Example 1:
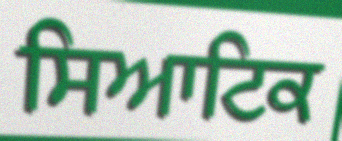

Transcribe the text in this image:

ਸਿਆਟਿਕ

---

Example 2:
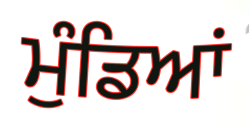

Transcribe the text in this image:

ਮੁੰਡਿਆਂ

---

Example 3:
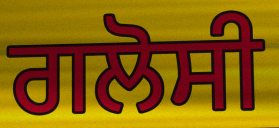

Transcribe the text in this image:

ਗਲੋਸੀ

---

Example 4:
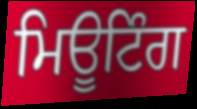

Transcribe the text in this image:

ਮਿਊਟਿੰਗ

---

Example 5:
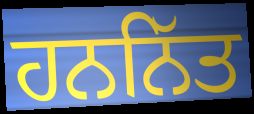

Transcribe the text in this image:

ਹਨਨਿੱਤ